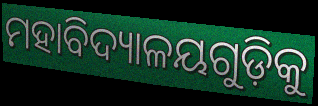
ମହାବିଦ୍ୟାଳୟଗୁଡ଼ିକୁ